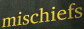
mischiefs